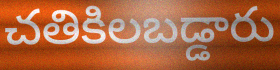
చతికిలబడ్డారు